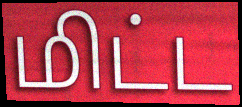
மிட்ட